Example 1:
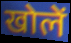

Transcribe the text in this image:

खोलें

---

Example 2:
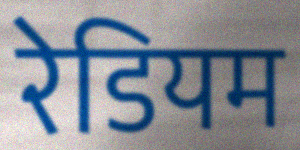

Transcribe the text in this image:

रेडियम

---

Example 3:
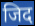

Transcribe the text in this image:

जिद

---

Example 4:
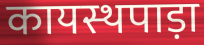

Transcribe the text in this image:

कायस्थपाड़ा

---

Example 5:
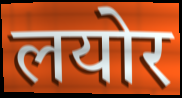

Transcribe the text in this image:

लयोर